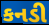
કનડી